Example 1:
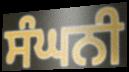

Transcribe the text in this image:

ਸੰਘਨੀ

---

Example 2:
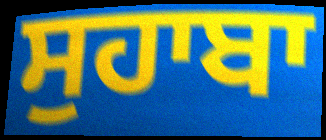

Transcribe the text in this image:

ਸੁਹਾਬਾ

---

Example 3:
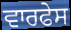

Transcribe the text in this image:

ਵਾਰਫੇਸ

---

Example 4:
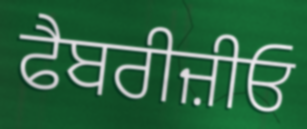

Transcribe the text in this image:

ਫੈਬਰੀਜ਼ੀਓ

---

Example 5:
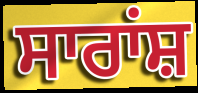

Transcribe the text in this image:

ਸਾਰਾਂਸ਼